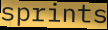
sprints